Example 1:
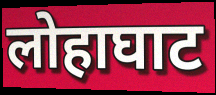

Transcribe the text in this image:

लोहाघाट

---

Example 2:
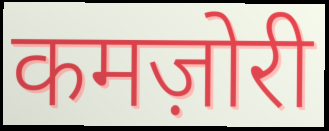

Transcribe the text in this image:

कमज़ोरी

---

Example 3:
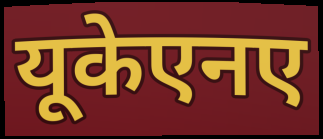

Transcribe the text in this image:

यूकेएनए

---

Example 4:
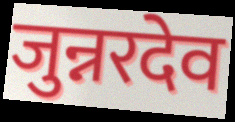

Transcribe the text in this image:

जुन्नरदेव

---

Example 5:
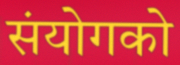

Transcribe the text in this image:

संयोगको